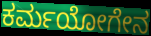
ಕರ್ಮಯೋಗೇನ